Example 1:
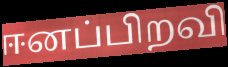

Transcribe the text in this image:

ஈனப்பிறவி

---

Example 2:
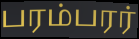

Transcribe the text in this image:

பரம்பரர்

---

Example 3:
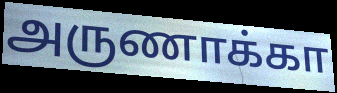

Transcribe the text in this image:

அருணாக்கா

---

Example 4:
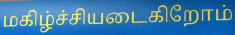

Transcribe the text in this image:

மகிழ்ச்சியடைகிறோம்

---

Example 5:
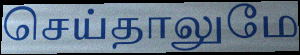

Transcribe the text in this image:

செய்தாலுமே